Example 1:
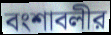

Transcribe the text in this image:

বংশাবলীর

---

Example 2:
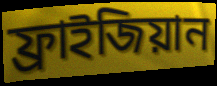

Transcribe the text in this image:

ফ্রাইজিয়ান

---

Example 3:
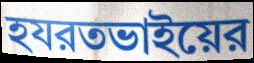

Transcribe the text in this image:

হযরতভাইয়ের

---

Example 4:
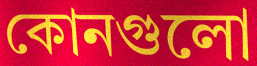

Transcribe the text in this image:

কোনগুলো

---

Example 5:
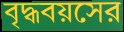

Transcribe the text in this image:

বৃদ্ধবয়সের